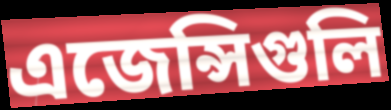
এজেন্সিগুলি